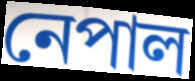
নেপাল